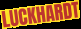
LUCKHARDT